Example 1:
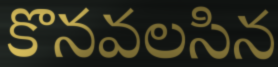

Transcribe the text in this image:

కొనవలసిన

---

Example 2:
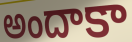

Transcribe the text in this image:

అందాకా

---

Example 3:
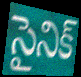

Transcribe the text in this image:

సైనిక్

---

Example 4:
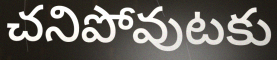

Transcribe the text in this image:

చనిపోవుటకు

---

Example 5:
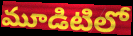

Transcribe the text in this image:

మూడిటిలో